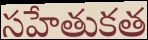
సహేతుకత